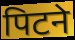
पिटने